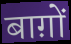
बाग़ों